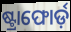
ଷ୍ଟ୍ରାଫୋର୍ଡ଼